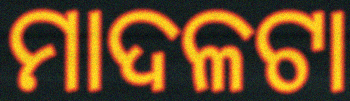
ମାଦଳଟା